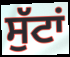
ਸੁੱਟਾਂ